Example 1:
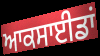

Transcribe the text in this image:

ਆਕਸਾਈਡਾਂ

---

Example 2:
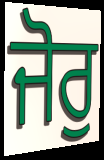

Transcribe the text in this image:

ਜੋਰੁ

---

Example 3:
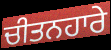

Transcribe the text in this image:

ਚੀਤਨਹਾਰੇ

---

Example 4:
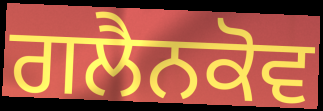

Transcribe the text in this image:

ਗਲੈਨਕੋਵ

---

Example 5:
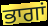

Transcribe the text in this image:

ਭਾਗਾਂ